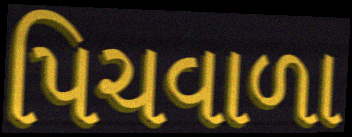
પિચવાળા